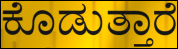
ಕೊಡುತ್ತಾರೆ